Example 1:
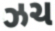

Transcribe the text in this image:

ઝચ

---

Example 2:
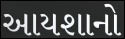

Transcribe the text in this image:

આયશાનો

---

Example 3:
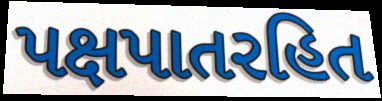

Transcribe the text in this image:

પક્ષપાતરહિત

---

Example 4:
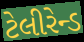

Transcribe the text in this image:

ટેલીરેન્ડ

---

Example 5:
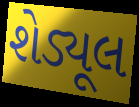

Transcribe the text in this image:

શેડ્યૂલ